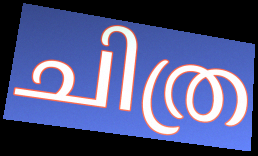
ചിത്ര